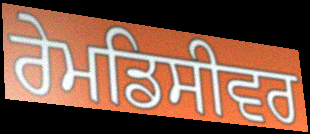
ਰੇਮਡਿਸੀਵਰ